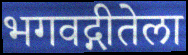
भगवद्गीतेला